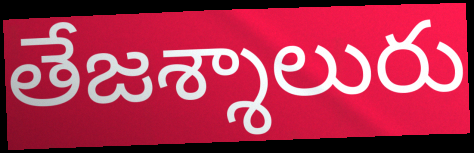
తేజశ్శాలురు